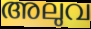
അലുവ